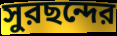
সুরছন্দের